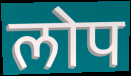
लोप